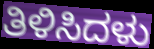
ತಿಳಿಸಿದಳು